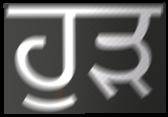
ਹੁੜ